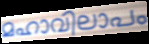
മഹാവിലാപം